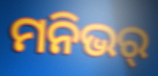
ମନିଭର୍